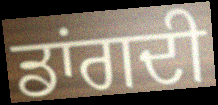
ਡਾਂਗਦੀ